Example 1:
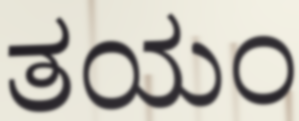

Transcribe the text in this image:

ತಯಂ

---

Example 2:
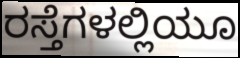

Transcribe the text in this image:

ರಸ್ತೆಗಳಲ್ಲಿಯೂ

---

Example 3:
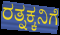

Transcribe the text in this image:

ರತ್ನಕ್ಕನಿಗೆ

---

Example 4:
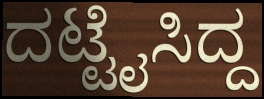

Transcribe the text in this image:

ದಟ್ಟೈಸಿದ್ದ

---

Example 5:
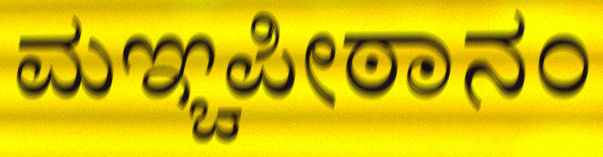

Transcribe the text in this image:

ಮಞ್ಚಪೀಠಾನಂ